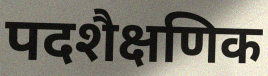
पदशैक्षणिक